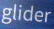
glider